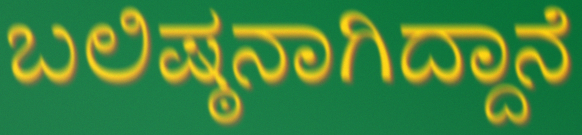
ಬಲಿಷ್ಠನಾಗಿದ್ದಾನೆ